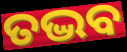
ତଦ୍ଭବ